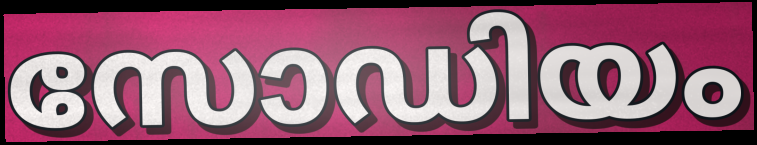
സോഡിയം